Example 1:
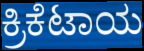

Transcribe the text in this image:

ಕ್ರಿಕೆಟಾಯ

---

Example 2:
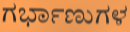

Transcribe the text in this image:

ಗರ್ಭಾಣುಗಳ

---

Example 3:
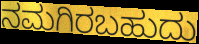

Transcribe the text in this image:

ನಮಗಿರಬಹುದು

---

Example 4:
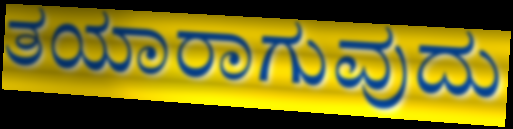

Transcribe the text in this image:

ತಯಾರಾಗುವುದು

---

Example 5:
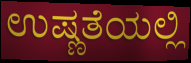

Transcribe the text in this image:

ಉಷ್ಣತೆಯಲ್ಲಿ